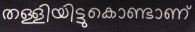
തള്ളിയിട്ടുകൊണ്ടാണ്